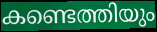
കണ്ടെത്തിയും